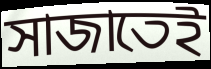
সাজাতেই